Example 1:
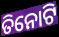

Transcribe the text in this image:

ତିନୋଟି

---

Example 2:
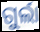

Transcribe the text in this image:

ଗୁର୍ଲା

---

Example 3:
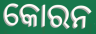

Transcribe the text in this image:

କୋରନ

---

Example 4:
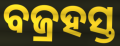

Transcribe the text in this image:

ବଜ୍ରହସ୍ତ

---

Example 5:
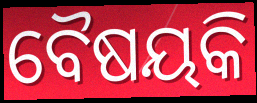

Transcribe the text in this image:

ବୈଷୟକି